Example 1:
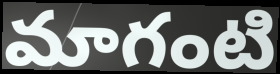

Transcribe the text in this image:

మాగంటి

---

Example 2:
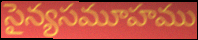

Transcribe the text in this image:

సైన్యసమూహము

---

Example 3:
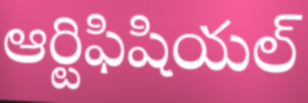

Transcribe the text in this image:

ఆర్టిఫిషియల్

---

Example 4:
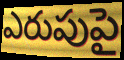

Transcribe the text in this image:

ఎరుపుపై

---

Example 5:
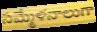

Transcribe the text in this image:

సమ్మేళనాలుగా